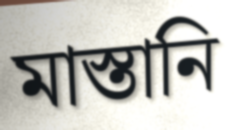
মাস্তানি